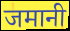
जमानी